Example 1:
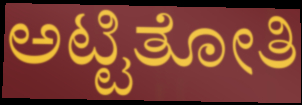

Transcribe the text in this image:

ಅಟ್ಟಿತೋತಿ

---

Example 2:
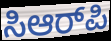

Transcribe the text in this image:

ಸಿಆರ್‌ಪಿ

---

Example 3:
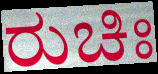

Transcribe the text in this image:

ರುಚಿಃ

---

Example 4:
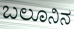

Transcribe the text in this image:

ಬಲೂನಿನ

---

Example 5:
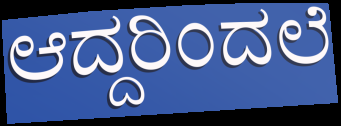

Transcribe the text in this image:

ಆದ್ದರಿಂದಲೆ